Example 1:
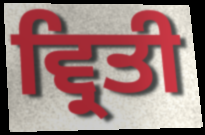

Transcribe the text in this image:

ਵ੍ਰਿਤੀ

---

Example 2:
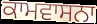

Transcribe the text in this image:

ਕਾਮਵਾਸਨਾ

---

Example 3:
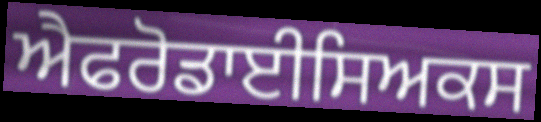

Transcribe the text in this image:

ਐਫਰੋਡਾਈਸਿਅਕਸ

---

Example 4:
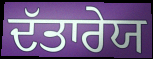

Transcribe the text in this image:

ਦੱਤਾਰੇਯ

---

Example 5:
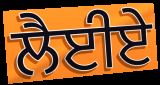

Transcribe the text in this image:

ਲੈਈਏ